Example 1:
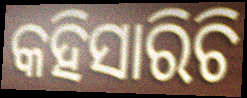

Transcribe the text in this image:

କହିସାରିଚି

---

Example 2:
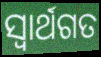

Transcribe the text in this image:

ସ୍ୱାର୍ଥଗତ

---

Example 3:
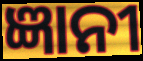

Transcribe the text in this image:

ଜ୍ଞାନୀ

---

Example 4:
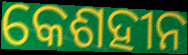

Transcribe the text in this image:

କେଶହୀନ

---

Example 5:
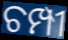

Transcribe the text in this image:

ଚମ୍ପୀ